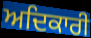
ਅਦਿਕਾਰੀ